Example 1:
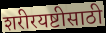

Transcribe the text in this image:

शरीरयष्टीसाठी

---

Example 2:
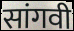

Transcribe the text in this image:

सांगवी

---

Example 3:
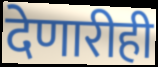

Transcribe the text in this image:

देणारीही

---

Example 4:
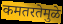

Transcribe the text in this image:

कमतरतेमुळे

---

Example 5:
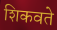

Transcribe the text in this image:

शिकवते